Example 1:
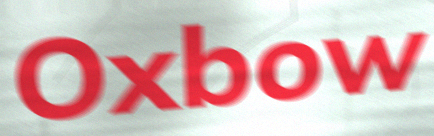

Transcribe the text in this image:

Oxbow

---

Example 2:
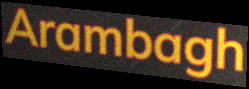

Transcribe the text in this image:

Arambagh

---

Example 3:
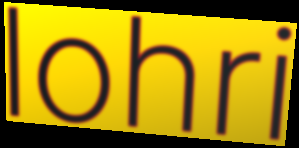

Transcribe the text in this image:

lohri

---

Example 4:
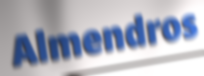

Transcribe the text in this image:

Almendros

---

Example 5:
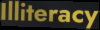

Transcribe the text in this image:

Illiteracy